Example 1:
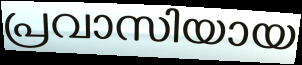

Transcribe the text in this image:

പ്രവാസിയായ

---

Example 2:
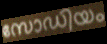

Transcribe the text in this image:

സോഡിയം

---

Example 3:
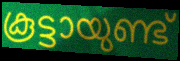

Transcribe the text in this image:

കൂട്ടായുണ്ട്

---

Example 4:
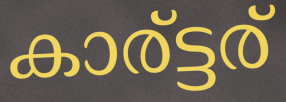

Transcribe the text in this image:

കാര്ട്ടര്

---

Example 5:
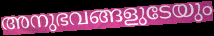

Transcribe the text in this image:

അനുഭവങ്ങളുടേയും